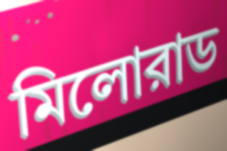
মিলোরাড